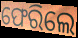
ଫେରିଲେ